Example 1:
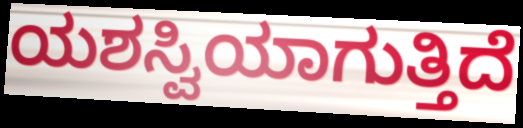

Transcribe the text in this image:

ಯಶಸ್ವಿಯಾಗುತ್ತಿದೆ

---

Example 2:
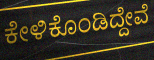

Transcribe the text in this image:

ಕೇಳಿಕೊಂಡಿದ್ದೇವೆ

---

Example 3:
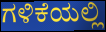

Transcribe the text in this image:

ಗಳಿಕೆಯಲ್ಲಿ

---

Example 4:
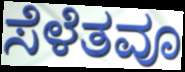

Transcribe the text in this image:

ಸೆಳೆತವೂ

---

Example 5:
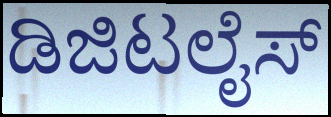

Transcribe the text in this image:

ಡಿಜಿಟಲೈಸ್